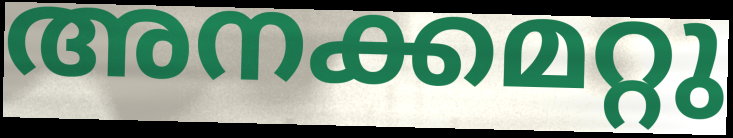
അനക്കമറ്റു